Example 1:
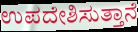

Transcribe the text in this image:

ಉಪದೇಶಿಸುತ್ತಾನೆ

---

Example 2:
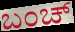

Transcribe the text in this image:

ಬಂಚ್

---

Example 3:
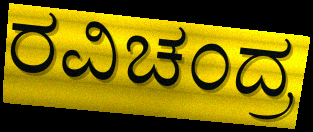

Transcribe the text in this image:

ರವಿಚಂದ್ರ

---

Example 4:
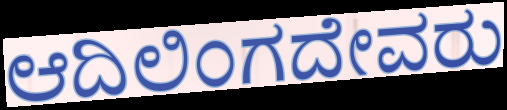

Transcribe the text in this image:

ಆದಿಲಿಂಗದೇವರು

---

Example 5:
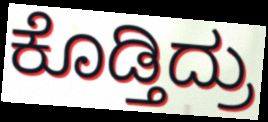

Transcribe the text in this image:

ಕೊಡ್ತಿದ್ರು